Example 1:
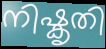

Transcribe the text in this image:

നിഷ്കൃതി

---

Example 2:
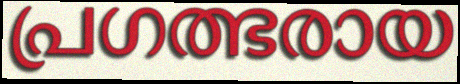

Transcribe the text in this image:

പ്രഗത്ഭരായ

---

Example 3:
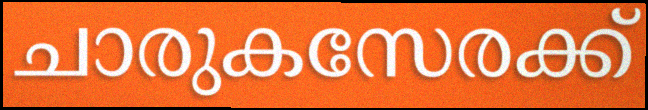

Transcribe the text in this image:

ചാരുകസേരക്ക്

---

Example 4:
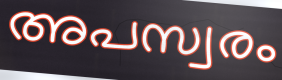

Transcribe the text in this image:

അപസ്വരം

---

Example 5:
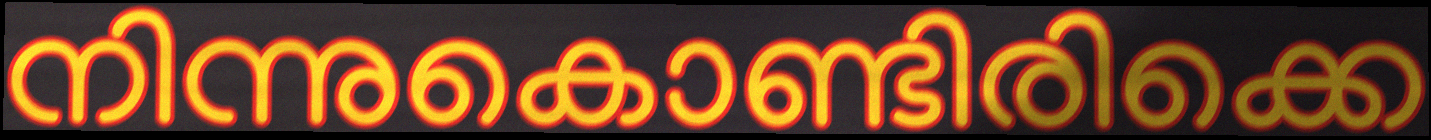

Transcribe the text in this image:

നിന്നുകൊണ്ടിരിക്കെ